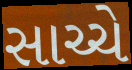
સાચ્ચે